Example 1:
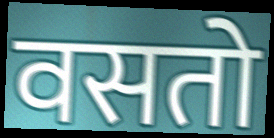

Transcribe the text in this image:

वसतो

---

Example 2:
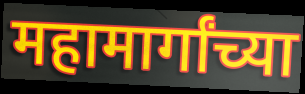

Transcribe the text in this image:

महामार्गांच्या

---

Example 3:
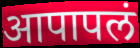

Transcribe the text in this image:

आपापलं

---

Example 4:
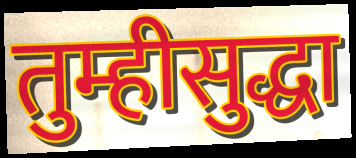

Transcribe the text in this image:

तुम्हीसुद्धा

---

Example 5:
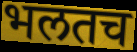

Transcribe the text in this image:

भलतच